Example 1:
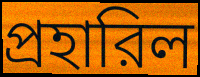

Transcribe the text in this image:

প্রহারিল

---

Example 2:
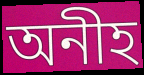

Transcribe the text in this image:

অনীহ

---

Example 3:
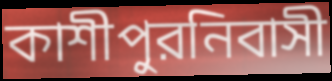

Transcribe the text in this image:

কাশীপুরনিবাসী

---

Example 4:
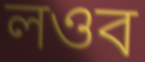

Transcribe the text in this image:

লওব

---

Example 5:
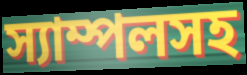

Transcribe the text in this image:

স্যাম্পলসহ